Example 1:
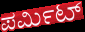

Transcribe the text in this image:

ಪರ್ಮಿಟ್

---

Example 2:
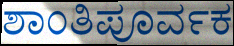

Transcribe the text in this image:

ಶಾಂತಿಪೂರ್ವಕ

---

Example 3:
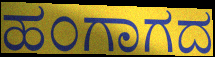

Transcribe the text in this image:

ಹಂಗಾಗದ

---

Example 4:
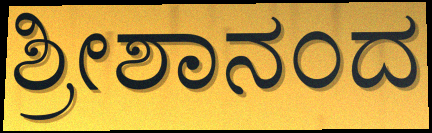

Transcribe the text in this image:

ಶ್ರೀಶಾನಂದ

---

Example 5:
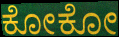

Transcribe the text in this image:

ಕೋಕೋ